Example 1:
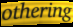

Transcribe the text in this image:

othering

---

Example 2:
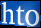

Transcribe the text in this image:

hto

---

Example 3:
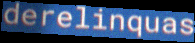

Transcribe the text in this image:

derelinquas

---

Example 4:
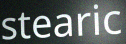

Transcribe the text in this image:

stearic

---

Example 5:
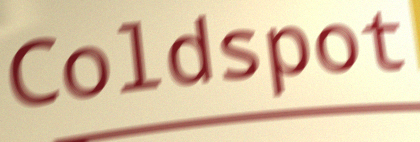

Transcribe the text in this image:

Coldspot